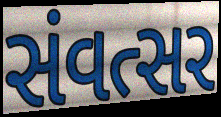
સંવત્સર